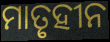
ମାତୃହୀନ